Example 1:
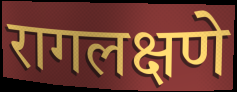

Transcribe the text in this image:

रागलक्षणे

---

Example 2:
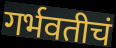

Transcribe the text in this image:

गर्भवतीचं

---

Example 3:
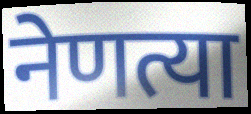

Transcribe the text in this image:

नेणत्या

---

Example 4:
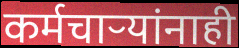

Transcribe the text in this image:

कर्मचाऱ्यांनाही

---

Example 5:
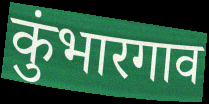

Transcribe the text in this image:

कुंभारगाव